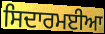
ਸਿਦਾਰਮਈਆ